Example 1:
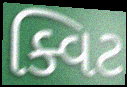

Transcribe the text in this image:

ક્વિટ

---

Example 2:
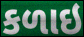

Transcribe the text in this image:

કળાઇ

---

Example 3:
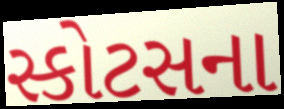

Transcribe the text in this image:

સ્કોટસના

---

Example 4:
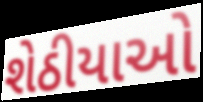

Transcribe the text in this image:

શેઠીયાઓ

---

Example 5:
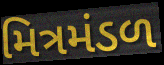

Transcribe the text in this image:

મિત્રમંડળ